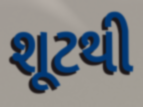
શૂટથી